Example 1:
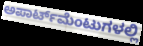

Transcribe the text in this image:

ಅಪಾರ್ಟ್‌ಮೆಂಟುಗಳಲ್ಲಿ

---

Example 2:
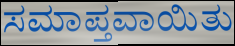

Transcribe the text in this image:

ಸಮಾಪ್ತವಾಯಿತು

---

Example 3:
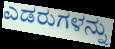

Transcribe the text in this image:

ಎಡರುಗಳನ್ನು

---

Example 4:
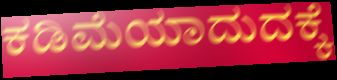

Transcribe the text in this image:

ಕಡಿಮೆಯಾದುದಕ್ಕೆ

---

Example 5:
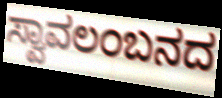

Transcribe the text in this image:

ಸ್ವಾವಲಂಬನದ